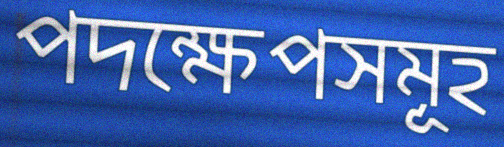
পদক্ষেপসমূহ